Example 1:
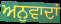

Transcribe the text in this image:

ਅਨੁਵਾਦਾਂ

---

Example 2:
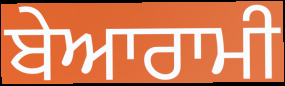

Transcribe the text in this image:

ਬੇਆਰਾਮੀ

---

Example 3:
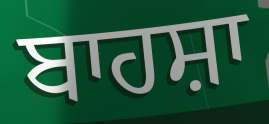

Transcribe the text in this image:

ਬਾਹਸ਼ਾ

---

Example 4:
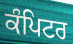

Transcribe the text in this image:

ਕੰਪਿਟਰ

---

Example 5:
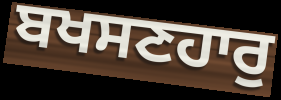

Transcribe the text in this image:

ਬਖਸਣਹਾਰੁ